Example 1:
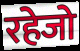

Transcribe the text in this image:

रहेजो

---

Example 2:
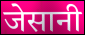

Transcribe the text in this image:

जेसानी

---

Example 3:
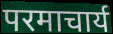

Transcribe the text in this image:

परमाचार्य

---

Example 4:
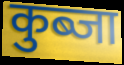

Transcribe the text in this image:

कुब्जा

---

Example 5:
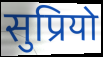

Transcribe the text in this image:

सुप्रियो